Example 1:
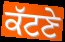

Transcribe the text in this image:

ਕੱਟਣੇ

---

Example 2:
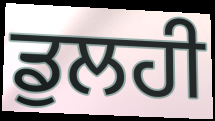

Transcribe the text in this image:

ਡੁਲਹੀ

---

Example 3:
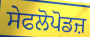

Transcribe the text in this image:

ਸੇਫਲੋਪੋਡਜ਼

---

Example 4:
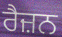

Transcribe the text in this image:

ਰੈਜ਼ਨ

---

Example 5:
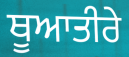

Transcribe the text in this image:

ਥੂਆਤੀਰੇ